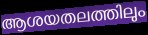
ആശയതലത്തിലും